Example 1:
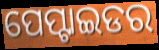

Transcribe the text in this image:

ପେପ୍ଟାଇଡର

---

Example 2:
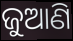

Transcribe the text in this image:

ଜୁଆଣି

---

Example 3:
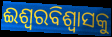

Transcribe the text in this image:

ଈଶ୍ୱରବିଶ୍ୱାସକୁ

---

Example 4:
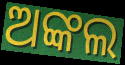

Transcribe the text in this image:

ଅଙ୍କଲ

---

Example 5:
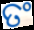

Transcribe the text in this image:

ତଂ